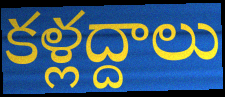
కళ్లద్దాలు